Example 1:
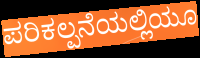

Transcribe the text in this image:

ಪರಿಕಲ್ಪನೆಯಲ್ಲಿಯೂ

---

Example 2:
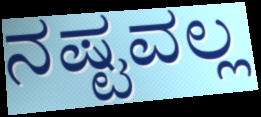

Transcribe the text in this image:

ನಷ್ಟವಲ್ಲ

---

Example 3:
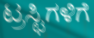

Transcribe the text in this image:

ಟ್ರಸ್ಟಿಗಳಿಗೆ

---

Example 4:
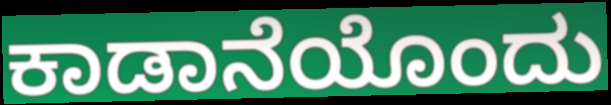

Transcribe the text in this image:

ಕಾಡಾನೆಯೊಂದು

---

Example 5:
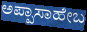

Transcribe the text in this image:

ಅಪ್ಪಾಸಾಹೇಬ